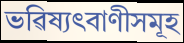
ভৱিষ্যৎবাণীসমূহ